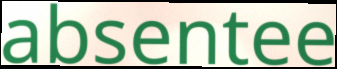
absentee